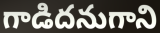
గాడిదనుగాని